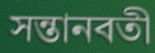
সন্তানবতী